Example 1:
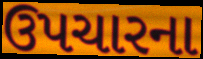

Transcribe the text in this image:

ઉપચારના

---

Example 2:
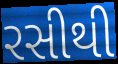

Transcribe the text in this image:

રસીથી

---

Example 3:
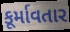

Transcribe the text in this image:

કૂર્માવતાર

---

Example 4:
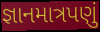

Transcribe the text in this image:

જ્ઞાનમાત્રપણું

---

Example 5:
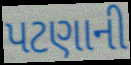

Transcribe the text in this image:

પટણાની